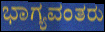
ಭಾಗ್ಯವಂತರು